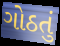
ગોઠતું